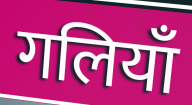
गलियाँ